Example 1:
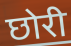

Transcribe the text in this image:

छोरी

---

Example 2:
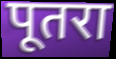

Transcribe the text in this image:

पूतरा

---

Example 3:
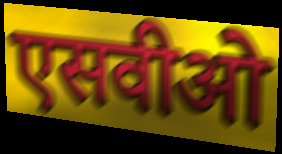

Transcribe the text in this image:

एसवीओ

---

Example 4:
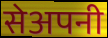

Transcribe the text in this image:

सेअपनी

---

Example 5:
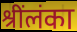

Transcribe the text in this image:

श्रींलंका